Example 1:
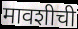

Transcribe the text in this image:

मावशीची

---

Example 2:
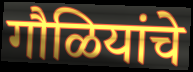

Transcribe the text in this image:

गौळियांचे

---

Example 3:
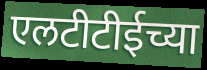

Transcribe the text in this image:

एलटीटीईच्या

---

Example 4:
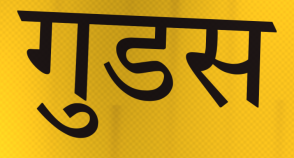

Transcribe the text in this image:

गुडस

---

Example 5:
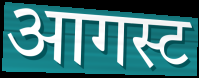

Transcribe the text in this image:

आगस्ट